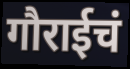
गौराईचं